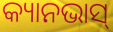
କ୍ୟାନଭାସ୍